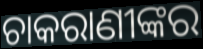
ଚାକରାଣୀଙ୍କର